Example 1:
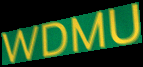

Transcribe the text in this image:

WDMU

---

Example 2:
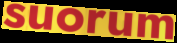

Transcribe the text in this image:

suorum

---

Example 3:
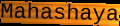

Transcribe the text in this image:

Mahashaya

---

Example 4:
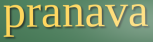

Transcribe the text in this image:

pranava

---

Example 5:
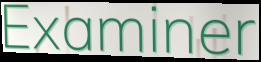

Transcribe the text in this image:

Examiner